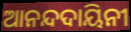
ଆନନ୍ଦଦାୟିନୀ